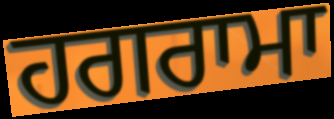
ਹਗਰਾਮਾ